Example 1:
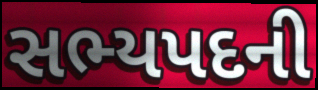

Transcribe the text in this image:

સભ્યપદની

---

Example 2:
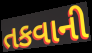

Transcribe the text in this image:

તકવાની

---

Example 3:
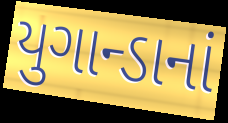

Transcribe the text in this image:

યુગાન્ડાનાં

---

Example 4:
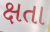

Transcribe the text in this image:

ક્ષતા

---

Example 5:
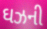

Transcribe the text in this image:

ઘઝની